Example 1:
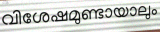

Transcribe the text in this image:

വിശേഷമുണ്ടായാലും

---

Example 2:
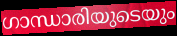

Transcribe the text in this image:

ഗാന്ധാരിയുടെയും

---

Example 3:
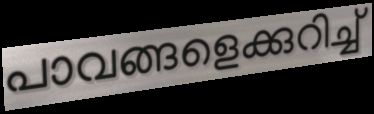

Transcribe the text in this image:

പാവങ്ങളെക്കുറിച്ച്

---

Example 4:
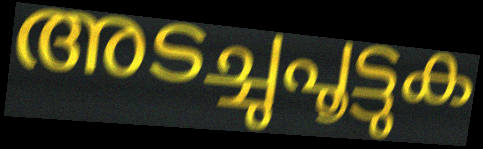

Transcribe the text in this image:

അടച്ചുപൂട്ടുക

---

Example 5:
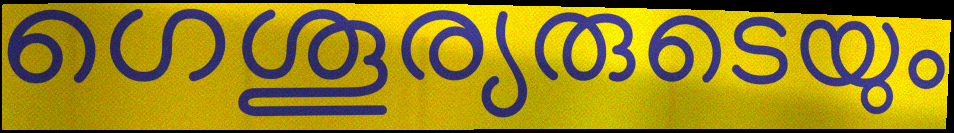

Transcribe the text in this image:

ഗെശൂര്യരുടെയും